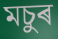
মচুৰ